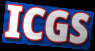
ICGS